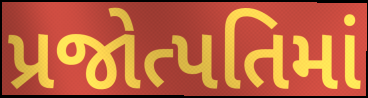
પ્રજોત્પતિમાં